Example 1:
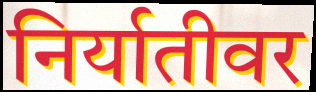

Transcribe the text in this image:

निर्यातीवर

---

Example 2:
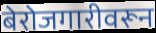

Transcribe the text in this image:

बेरोजगारीवरून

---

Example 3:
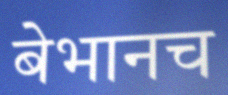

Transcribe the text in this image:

बेभानच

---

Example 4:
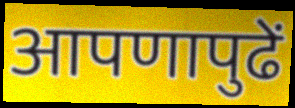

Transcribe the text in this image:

आपणापुढें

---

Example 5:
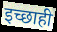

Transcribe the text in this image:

इच्छाही